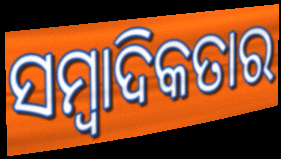
ସମ୍ୱାଦିକତାର